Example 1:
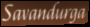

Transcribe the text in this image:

Savandurga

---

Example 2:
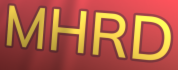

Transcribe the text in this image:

MHRD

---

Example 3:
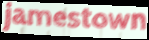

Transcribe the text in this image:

jamestown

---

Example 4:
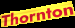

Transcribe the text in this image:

Thornton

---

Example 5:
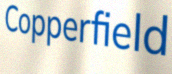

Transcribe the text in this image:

Copperfield